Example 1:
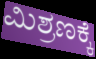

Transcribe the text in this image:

ಮಿಶ್ರಣಕ್ಕೆ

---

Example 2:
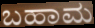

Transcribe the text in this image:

ಬಹಾಮ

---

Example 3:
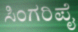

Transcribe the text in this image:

ಸಿಂಗರಿಪೈ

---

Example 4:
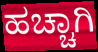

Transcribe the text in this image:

ಹಚ್ಚಾಗಿ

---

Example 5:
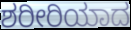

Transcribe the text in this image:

ಶರೀರಿಯಾದ